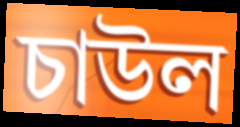
চাউল